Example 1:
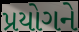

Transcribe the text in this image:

પ્રયોગને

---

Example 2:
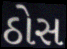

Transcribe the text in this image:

ઠોસ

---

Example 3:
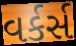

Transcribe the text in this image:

વર્કર્સ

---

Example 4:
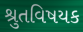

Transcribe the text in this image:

શ્રુતવિષયક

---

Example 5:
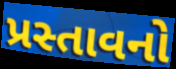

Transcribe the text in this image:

પ્રસ્તાવનો